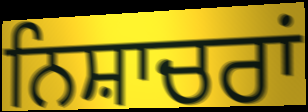
ਨਿਸ਼ਾਚਰਾਂ